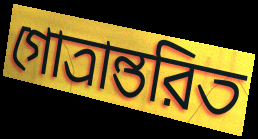
গোত্রান্তরিত